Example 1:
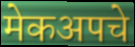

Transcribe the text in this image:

मेकअपचे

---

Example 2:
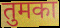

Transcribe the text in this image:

तुमका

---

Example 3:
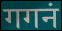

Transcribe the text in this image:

गगनं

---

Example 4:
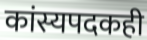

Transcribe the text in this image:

कांस्यपदकही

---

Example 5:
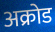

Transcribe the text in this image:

अक्रोड